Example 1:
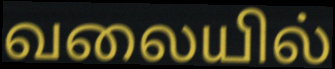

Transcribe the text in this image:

வலையில்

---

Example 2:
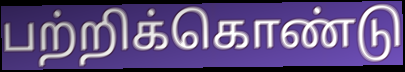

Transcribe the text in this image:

பற்றிக்கொண்டு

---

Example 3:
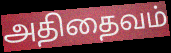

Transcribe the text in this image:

அதிதைவம்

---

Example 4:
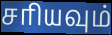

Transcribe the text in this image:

சரியவும்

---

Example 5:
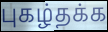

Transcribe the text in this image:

புகழ்தக்க